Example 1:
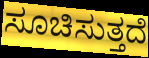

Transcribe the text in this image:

ಸೂಚಿಸುತ್ತದೆ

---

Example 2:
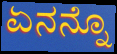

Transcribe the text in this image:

ಏನನ್ನೊ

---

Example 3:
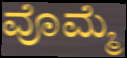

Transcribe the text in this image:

ವೊಮ್ಮೆ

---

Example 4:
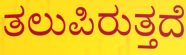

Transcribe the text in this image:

ತಲುಪಿರುತ್ತದೆ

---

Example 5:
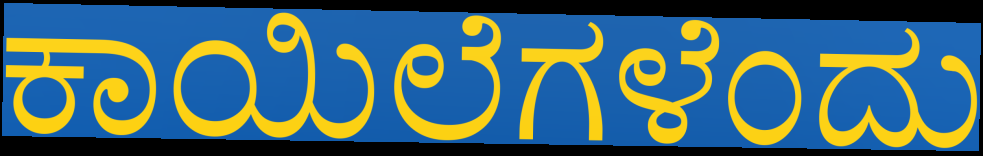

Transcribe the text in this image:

ಕಾಯಿಲೆಗಳೆಂದು